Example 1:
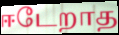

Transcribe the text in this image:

ஈடேறாத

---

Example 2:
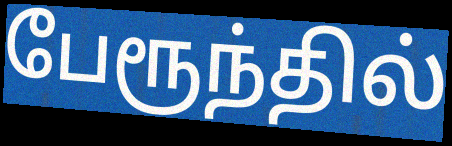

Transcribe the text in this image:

பேரூந்தில்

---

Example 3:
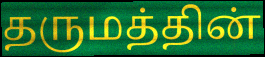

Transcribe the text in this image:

தருமத்தின்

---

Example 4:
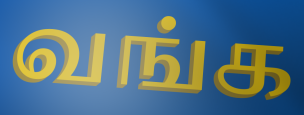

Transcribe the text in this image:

வங்க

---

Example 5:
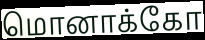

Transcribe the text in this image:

மொனாக்கோ